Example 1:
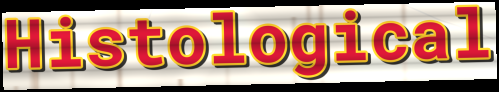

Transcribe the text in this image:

Histological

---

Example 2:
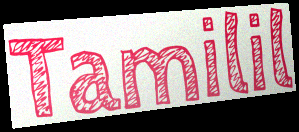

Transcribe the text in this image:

Tamilil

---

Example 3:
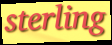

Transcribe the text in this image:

sterling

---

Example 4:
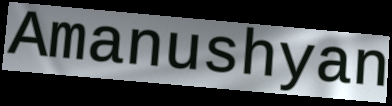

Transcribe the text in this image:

Amanushyan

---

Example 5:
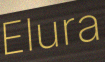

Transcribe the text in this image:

Elura